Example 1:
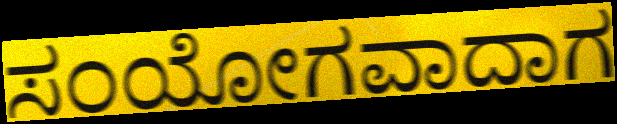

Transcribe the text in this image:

ಸಂಯೋಗವಾದಾಗ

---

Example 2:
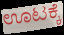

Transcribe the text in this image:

ಊಟಕ್ಕೆ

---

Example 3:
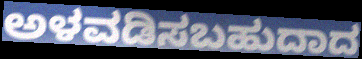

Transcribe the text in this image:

ಅಳವಡಿಸಬಹುದಾದ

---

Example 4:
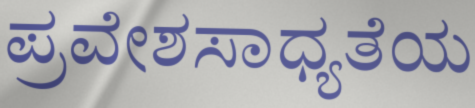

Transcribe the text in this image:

ಪ್ರವೇಶಸಾಧ್ಯತೆಯ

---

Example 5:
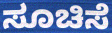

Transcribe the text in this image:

ಸೂಚಿಸೆ